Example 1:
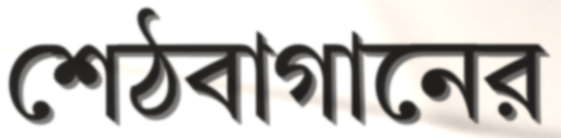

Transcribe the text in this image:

শেঠবাগানের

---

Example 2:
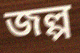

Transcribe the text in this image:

জল্প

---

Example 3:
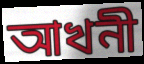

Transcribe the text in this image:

আখনী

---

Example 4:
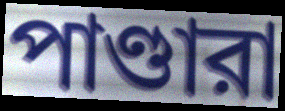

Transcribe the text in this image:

পাণ্ডারা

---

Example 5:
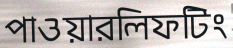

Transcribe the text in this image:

পাওয়ারলিফটিং